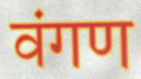
वंगण